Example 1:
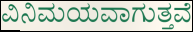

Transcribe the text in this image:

ವಿನಿಮಯವಾಗುತ್ತವೆ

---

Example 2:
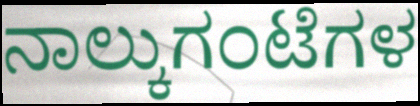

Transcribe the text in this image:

ನಾಲ್ಕುಗಂಟೆಗಳ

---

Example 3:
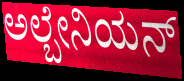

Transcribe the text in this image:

ಅಲ್ಬೇನಿಯನ್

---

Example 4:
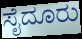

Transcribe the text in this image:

ಸೈದೂರು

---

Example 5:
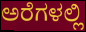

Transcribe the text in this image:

ಅರೆಗಳಲ್ಲಿ